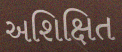
અશિક્ષિત